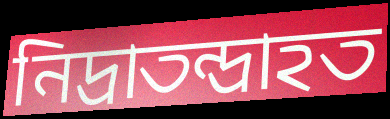
নিদ্রাতন্দ্রাহত